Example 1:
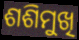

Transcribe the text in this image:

ଶଶିମୁଖି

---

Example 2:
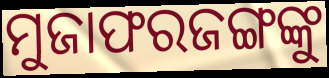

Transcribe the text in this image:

ମୁଜାଫରଜଙ୍ଗଙ୍କୁ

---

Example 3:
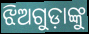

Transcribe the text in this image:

ଝିଅଗୁଡ଼ାଙ୍କୁ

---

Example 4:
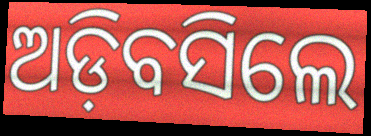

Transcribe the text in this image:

ଅଡ଼ିବସିଲେ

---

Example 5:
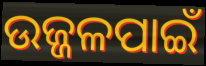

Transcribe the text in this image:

ଉଜ୍ଜଳପାଇଁ